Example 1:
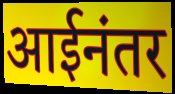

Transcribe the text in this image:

आईनंतर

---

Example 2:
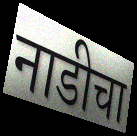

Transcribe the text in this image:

नाडीचा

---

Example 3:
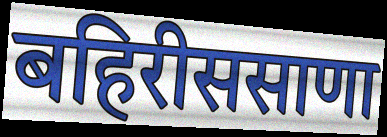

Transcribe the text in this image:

बहिरीससाणा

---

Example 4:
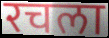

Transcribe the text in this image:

रचला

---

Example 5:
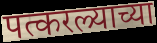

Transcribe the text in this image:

पत्करल्याच्या